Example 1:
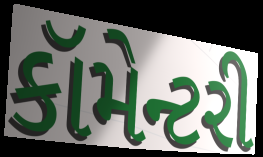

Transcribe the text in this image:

કૉમેન્ટરી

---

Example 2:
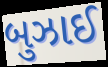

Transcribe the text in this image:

બુઝાઈ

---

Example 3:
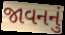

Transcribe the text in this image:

જાવનનું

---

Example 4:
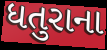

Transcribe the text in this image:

ધતુરાના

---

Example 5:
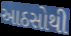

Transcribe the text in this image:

આઠસોથી